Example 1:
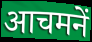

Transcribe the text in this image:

आचमनें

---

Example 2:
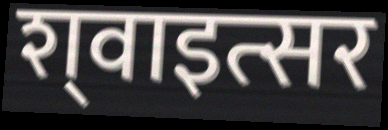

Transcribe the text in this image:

श्वाइत्सर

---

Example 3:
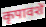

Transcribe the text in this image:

कृपावशें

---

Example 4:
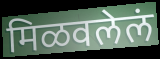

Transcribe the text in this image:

मिळवलेलं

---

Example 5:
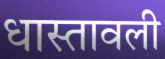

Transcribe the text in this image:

धास्तावली